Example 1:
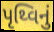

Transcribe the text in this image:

પૃથ્વિનું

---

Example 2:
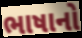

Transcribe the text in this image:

ભાષાનો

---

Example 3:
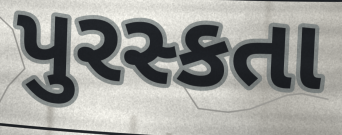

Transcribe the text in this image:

પુરસ્કતા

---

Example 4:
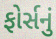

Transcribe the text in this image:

ફોર્સનું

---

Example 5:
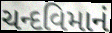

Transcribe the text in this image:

ચન્દવિમાનં